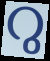
റു